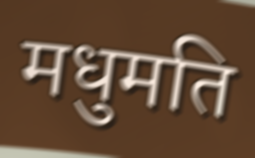
मधुमति